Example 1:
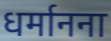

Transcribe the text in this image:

धर्मानना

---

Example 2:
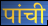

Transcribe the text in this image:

पांची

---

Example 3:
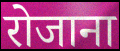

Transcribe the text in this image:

रोजाना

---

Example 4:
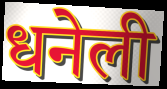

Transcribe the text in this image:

धनेली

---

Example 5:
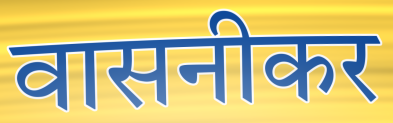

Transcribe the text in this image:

वासनीकर